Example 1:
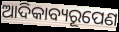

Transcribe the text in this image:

ଆଦିକାବ୍ୟରୂପେଣ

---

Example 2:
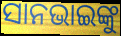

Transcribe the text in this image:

ସାନଭାଇଙ୍କୁ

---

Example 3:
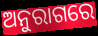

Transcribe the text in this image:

ଅନୁରାଗରେ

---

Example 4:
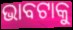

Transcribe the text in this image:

ଭାବଟାକୁ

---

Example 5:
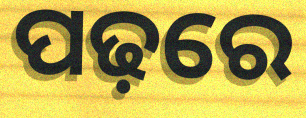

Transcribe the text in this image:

ପଢ଼ରେ